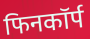
फिनकॉर्प